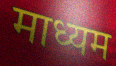
माध्यम